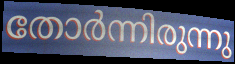
തോർന്നിരുന്നു